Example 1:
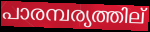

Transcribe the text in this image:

പാരമ്പര്യത്തില്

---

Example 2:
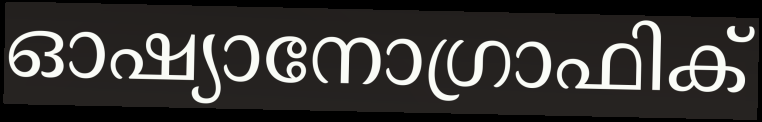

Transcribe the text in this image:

ഓഷ്യാനോഗ്രാഫിക്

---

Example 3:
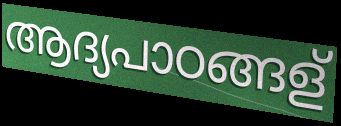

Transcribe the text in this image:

ആദ്യപാഠങ്ങള്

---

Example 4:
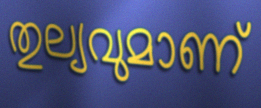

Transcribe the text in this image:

തുല്യവുമാണ്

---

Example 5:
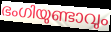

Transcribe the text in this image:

ഭംഗിയുണ്ടാവും